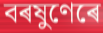
বৰষুণেৰে